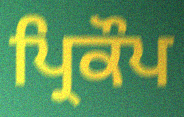
ਪ੍ਰਿਕੌਪ